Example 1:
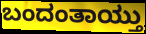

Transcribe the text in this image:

ಬಂದಂತಾಯ್ತು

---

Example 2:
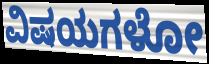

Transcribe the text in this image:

ವಿಷಯಗಳೋ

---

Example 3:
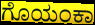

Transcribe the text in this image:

ಗೊಯಂಕಾ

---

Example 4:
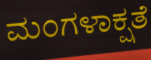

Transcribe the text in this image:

ಮಂಗಳಾಕ್ಷತೆ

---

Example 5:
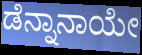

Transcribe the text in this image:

ಡೆನ್ನಾನಾಯೇ